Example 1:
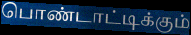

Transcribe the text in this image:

பொண்டாட்டிக்கும்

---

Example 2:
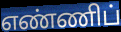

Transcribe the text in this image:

எண்ணிப்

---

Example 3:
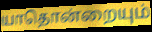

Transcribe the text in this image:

யாதொன்றையும்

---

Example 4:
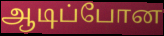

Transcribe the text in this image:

ஆடிப்போன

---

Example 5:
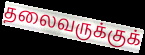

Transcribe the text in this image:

தலைவருக்குக்